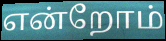
என்றோம்